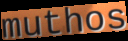
muthos